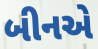
બીનએ